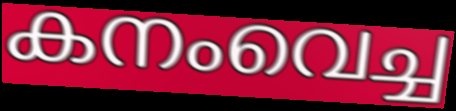
കനംവെച്ച